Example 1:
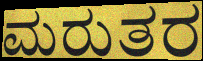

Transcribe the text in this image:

ಮರುತರ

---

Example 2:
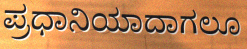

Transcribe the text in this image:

ಪ್ರಧಾನಿಯಾದಾಗಲೂ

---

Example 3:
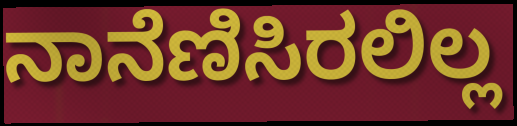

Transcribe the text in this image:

ನಾನೆಣಿಸಿರಲಿಲ್ಲ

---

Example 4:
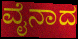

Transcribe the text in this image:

ವೈನಾದ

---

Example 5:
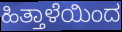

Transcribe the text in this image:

ಹಿತ್ತಾಳೆಯಿಂದ